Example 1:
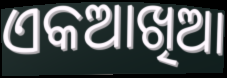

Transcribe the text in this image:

ଏକଆଖିଆ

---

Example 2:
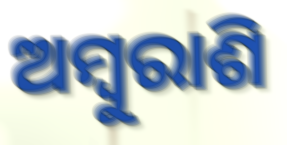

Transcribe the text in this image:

ଅମ୍ୱୁରାଶି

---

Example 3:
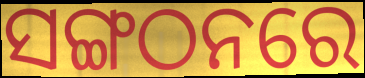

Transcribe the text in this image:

ସଙ୍ଗଠନରେ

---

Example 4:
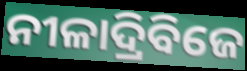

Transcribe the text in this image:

ନୀଳାଦ୍ରିବିଜେ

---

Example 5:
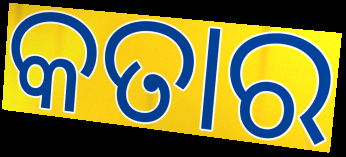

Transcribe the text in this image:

କତାର